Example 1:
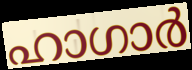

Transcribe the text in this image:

ഹാഗാർ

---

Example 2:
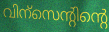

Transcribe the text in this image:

വിന്സെന്റിന്റെ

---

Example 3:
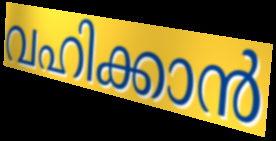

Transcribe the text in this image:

വഹിക്കാൻ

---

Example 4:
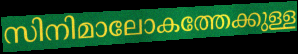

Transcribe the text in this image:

സിനിമാലോകത്തേക്കുള്ള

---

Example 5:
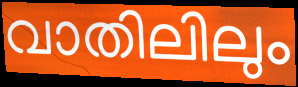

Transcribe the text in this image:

വാതിലിലും